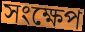
সংক্ষেপ